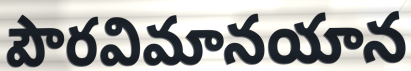
పౌరవిమానయాన